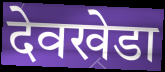
देवखेडा